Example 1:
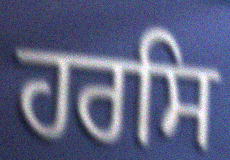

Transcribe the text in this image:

ਹਰਸਿ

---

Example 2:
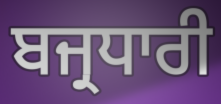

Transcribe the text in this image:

ਬਜ੍ਰਧਾਰੀ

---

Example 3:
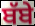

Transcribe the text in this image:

ਬੱਬੇ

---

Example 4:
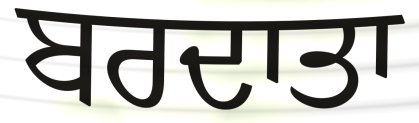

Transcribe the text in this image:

ਬਰਦਾਤਾ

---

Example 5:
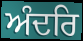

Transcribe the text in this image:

ਅੰਦਰਿ